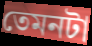
তেমনটা